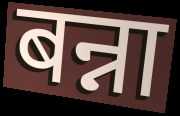
बन्ना